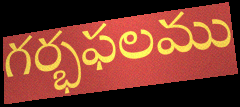
గర్భఫలము